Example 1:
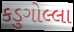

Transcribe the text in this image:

કડુગોલ્લા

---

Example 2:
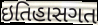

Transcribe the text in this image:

ઇતિહાસગત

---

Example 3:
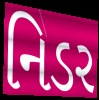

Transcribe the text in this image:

નિડર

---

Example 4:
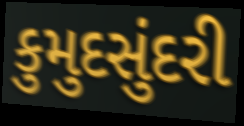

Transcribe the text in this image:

કુમુદસુંદરી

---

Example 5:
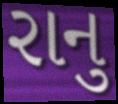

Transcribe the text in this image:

રાનુ